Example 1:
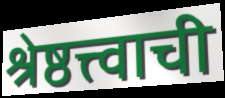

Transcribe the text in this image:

श्रेष्ठत्त्वाची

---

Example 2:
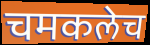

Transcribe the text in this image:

चमकलेच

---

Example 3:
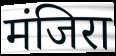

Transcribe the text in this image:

मंजिरा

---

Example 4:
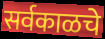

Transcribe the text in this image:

सर्वकाळचे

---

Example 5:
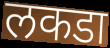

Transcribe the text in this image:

लकडा